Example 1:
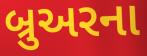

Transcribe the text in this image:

બ્રુઅરના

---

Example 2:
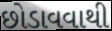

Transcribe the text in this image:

છોડાવવાથી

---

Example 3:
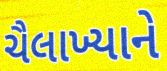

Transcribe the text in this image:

ચૈલાખ્યાને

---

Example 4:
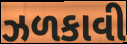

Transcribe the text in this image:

ઝળકાવી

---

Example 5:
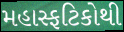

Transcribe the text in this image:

મહાસ્ફટિકોથી